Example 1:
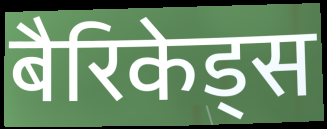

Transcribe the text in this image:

बैरिकेड्स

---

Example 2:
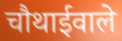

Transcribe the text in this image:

चौथाईवाले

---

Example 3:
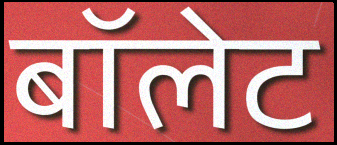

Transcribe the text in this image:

बॉलेट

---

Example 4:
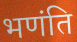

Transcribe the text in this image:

भणंति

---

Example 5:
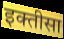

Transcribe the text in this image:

इक्तीसा